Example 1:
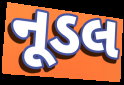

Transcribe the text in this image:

નૂડલ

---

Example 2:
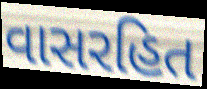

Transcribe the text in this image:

વાસરહિત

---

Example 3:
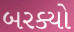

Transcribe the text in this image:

બરક્યો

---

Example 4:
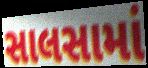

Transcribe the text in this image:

સાલસામાં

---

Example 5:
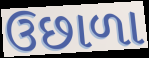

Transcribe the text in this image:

ઉછાળા